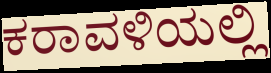
ಕರಾವಳಿಯಲ್ಲಿ